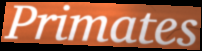
Primates